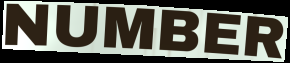
NUMBER